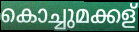
കൊച്ചുമക്കള്